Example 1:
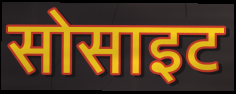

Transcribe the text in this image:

सोसाइट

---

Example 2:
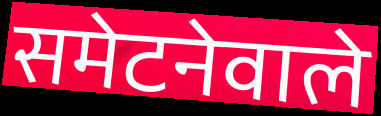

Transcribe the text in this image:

समेटनेवाले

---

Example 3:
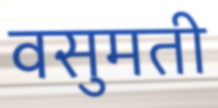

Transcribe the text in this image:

वसुमती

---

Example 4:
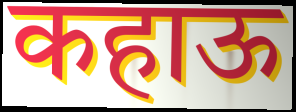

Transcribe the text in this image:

कहाऊ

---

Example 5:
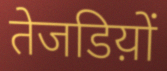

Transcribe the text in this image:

तेजडिय़ों